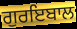
ਗੁਰਇਬਾਲ